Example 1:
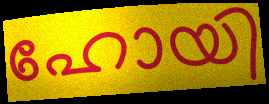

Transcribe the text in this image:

ഹോയി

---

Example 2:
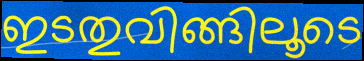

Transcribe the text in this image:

ഇടതുവിങ്ങിലൂടെ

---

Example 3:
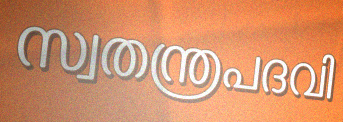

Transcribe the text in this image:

സ്വതന്ത്രപദവി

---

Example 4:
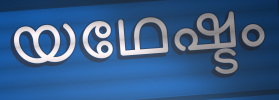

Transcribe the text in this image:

യഥേഷ്ടം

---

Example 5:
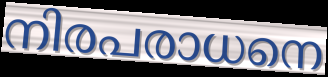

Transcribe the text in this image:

നിരപരാധനെ